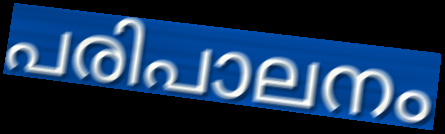
പരിപാലനം